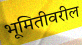
भूमितीवरील